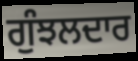
ਗੁੰਝਲਦਾਰ